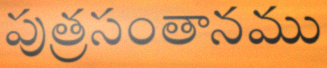
పుత్రసంతానము